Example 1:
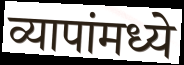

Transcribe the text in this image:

व्यापांमध्ये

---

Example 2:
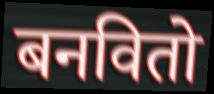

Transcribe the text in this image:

बनवितो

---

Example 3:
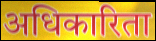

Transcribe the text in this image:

अधिकारिता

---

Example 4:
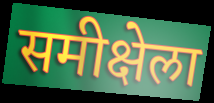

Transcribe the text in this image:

समीक्षेला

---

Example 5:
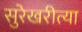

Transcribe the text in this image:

सुरेखरीत्या